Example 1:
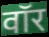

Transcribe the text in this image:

वॉर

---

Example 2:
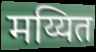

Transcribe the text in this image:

मय्यित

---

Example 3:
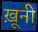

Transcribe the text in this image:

ख़ूनी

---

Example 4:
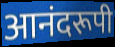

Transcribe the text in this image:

आनंदरूपी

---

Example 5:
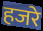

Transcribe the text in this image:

हजरे